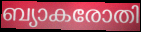
ബ്യാകരോതി